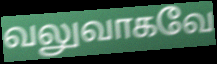
வலுவாகவே